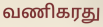
வணிகரது